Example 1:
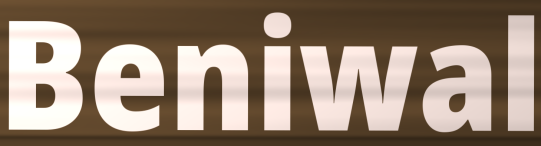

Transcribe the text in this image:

Beniwal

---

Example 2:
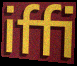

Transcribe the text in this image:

iffi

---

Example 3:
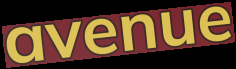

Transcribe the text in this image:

avenue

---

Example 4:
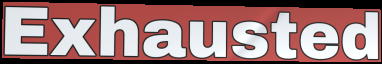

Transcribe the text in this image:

Exhausted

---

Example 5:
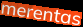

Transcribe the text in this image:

merentas